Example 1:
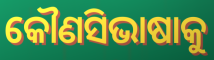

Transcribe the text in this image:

କୌଣସିଭାଷାକୁ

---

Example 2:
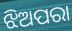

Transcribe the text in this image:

ଝିଅପରା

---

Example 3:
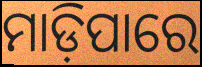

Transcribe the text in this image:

ମାଡ଼ିପାରେ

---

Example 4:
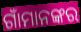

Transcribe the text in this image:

ଗାଁମାନଙ୍କର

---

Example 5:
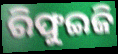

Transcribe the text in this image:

ରିଫୁଇଜି